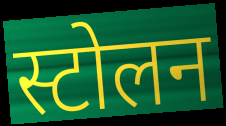
स्टोलन